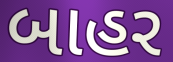
બાહર